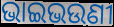
ଭାଇଭଉଣୀ